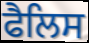
ਫੈਲਿਸ